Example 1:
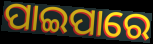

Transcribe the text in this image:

ପାଇପାରେ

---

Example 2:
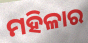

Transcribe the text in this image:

ମହିଳାର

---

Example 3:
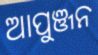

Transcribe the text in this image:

ଆପୁଞ୍ଜନ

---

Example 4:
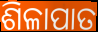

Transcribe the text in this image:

ଶିଳାପାତ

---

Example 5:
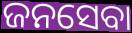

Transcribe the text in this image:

ଜନସେବା